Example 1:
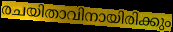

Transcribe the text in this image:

രചയിതാവിനായിരിക്കും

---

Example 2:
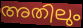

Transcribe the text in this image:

അതിലും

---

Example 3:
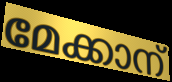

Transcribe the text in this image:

മേക്കാന്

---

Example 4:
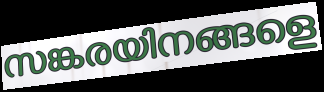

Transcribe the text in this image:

സങ്കരയിനങ്ങളെ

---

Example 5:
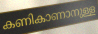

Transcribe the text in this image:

കണികാണാനുള്ള